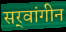
सर्वांगीन